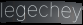
legechey